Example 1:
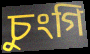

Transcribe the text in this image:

চুংগি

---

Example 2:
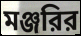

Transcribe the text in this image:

মঞ্জরির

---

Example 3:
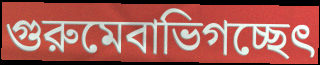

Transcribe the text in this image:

গুরুমেবাভিগচ্ছেৎ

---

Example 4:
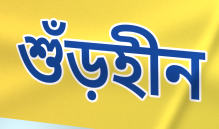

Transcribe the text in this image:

শুঁড়হীন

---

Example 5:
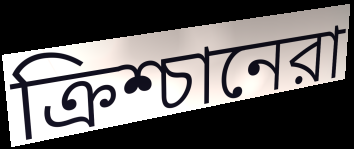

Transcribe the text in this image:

ক্রিশ্চানেরা